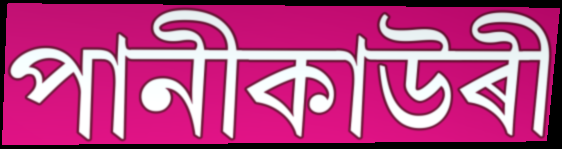
পানীকাউৰী